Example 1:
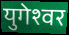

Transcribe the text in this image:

युगेश्वर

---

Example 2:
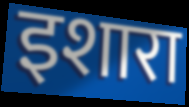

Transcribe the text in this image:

इशारा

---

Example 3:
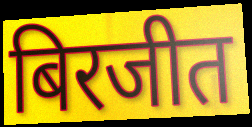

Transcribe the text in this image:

बिरजीत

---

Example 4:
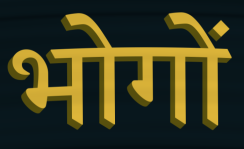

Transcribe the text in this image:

भोगों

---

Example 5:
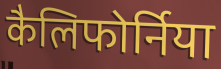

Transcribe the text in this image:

कैलिफोर्निया